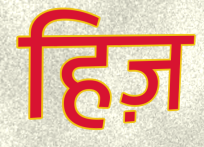
हिज़